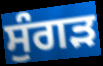
ਸੁੰਗੜ